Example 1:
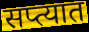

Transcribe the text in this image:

सप्त्यात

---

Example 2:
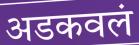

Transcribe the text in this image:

अडकवलं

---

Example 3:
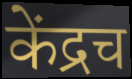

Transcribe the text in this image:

केंद्रच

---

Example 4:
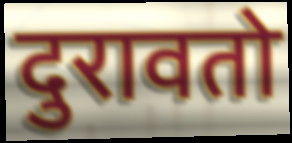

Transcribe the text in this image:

दुरावतो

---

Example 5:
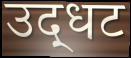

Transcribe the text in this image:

उद्धट